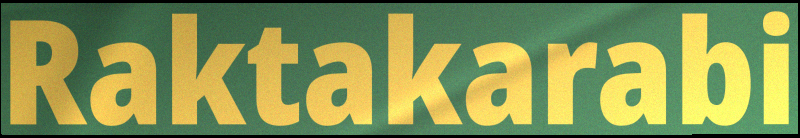
Raktakarabi